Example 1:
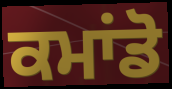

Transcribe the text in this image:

ਕਮਾਂਡੋ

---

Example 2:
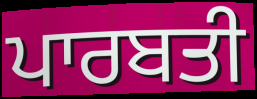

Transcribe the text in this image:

ਪਾਰਬਤੀ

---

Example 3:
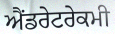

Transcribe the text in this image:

ਐਂਡਰੇਟਰੇਕਮੀ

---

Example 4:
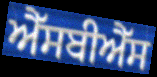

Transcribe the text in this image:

ਐੱਸਬੀਐੱਸ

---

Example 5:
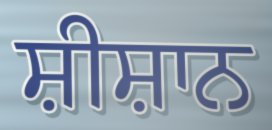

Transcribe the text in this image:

ਸ਼ੀਸ਼ਾਨ